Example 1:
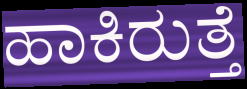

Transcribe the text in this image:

ಹಾಕಿರುತ್ತೆ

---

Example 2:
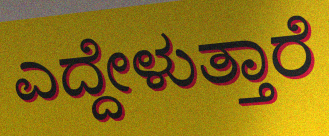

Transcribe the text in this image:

ಎದ್ದೇಳುತ್ತಾರೆ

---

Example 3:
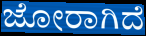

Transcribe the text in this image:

ಜೋರಾಗಿದೆ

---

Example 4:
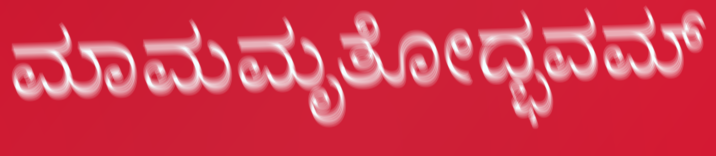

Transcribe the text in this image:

ಮಾಮಮೃತೋದ್ಭವಮ್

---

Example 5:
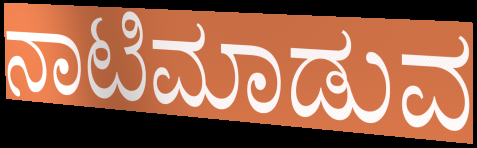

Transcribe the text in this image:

ನಾಟಿಮಾಡುವ